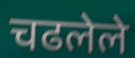
चढलेले